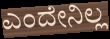
ಎಂದೇನಿಲ್ಲ